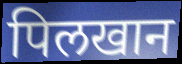
पिलखान